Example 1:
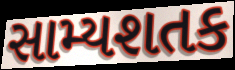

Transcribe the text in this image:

સામ્યશતક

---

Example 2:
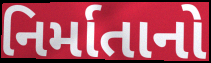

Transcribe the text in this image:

નિર્માતાનો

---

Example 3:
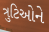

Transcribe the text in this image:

ત્રુટિઓને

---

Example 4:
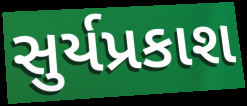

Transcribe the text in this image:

સુર્યપ્રકાશ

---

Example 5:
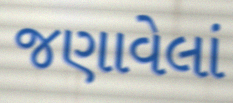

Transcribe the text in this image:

જણાવેલાં